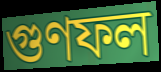
গুণফল